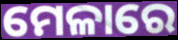
ମେଳାରେ